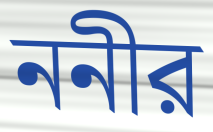
ননীর